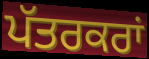
ਪੱਤਰਕਰਾਂ